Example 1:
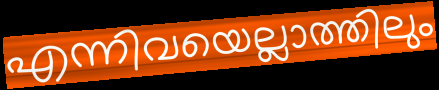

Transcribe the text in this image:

എന്നിവയെല്ലാത്തിലും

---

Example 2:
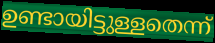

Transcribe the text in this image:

ഉണ്ടായിട്ടുള്ളതെന്ന്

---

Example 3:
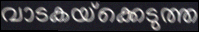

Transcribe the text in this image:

വാടകയ്‌ക്കെടുത്ത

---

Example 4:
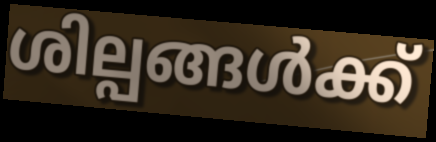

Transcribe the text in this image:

ശില്പങ്ങൾക്ക്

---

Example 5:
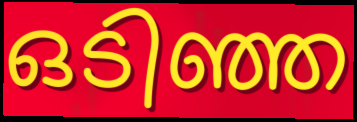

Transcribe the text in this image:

ഒടിഞ്ഞ